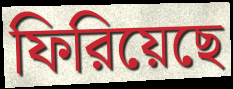
ফিরিয়েছে